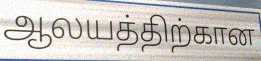
ஆலயத்திற்கான